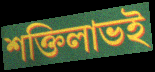
শক্তিলাভই